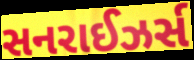
સનરાઈઝર્સ